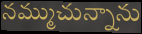
నమ్ముచున్నాను